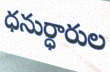
ధనుర్ధారుల